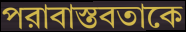
পরাবাস্তবতাকে